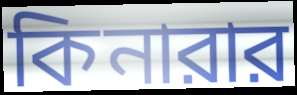
কিনারার